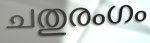
ചതുരംഗം